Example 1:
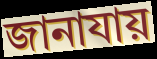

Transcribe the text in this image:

জানাযায়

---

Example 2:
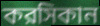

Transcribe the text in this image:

করসিকান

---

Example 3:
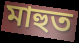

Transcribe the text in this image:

মাহুত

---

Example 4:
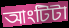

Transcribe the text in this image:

আংটিটা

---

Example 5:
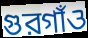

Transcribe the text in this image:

গুরগাঁও